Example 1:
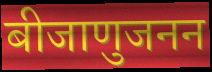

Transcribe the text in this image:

बीजाणुजनन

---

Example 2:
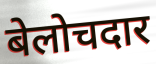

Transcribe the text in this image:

बेलोचदार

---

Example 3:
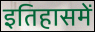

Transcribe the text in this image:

इतिहासमें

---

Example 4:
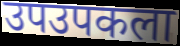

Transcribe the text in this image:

उपउपकला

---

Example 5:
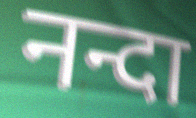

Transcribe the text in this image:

नन्दा